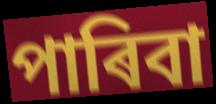
পাৰিবা